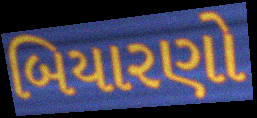
બિયારણો